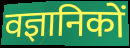
वज्ञानिकों